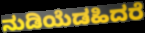
ನುಡಿಯೆಡಹಿದರೆ